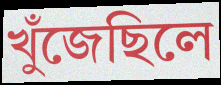
খুঁজেছিলে